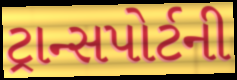
ટ્રાન્સપોર્ટની